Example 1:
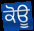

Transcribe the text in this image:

ਕੋਊ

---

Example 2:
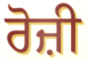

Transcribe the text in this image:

ਰੋਜ਼ੀ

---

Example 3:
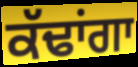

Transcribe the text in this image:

ਕੱਢਾਂਗਾ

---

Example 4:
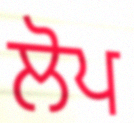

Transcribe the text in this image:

ਲੋਪ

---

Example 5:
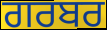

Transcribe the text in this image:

ਗਰਬਰ